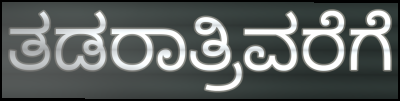
ತಡರಾತ್ರಿವರೆಗೆ